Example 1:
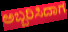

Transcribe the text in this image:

ಅಬ್ಬರಿಸಿದಾಗ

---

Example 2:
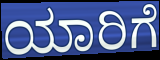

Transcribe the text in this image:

ಯಾರಿಗೆ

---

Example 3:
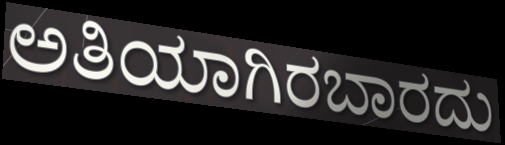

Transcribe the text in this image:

ಅತಿಯಾಗಿರಬಾರದು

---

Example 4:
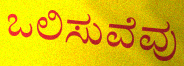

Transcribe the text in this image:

ಒಲಿಸುವೆವು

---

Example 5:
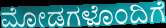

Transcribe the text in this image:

ಮೋಡಗಳೊಂದಿಗೆ